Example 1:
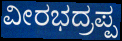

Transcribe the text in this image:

ವೀರಭದ್ರಪ್ಪ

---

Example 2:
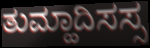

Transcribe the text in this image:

ತುಮ್ಹಾದಿಸಸ್ಸ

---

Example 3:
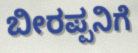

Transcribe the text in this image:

ಬೀರಪ್ಪನಿಗೆ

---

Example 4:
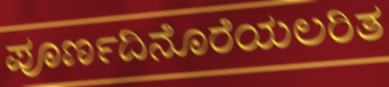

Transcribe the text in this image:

ಪೂರ್ಣದಿನೊರೆಯಲರಿತ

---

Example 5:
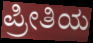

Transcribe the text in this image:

ಪ್ರೀತಿಯ